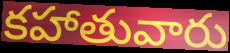
కహాతువారు